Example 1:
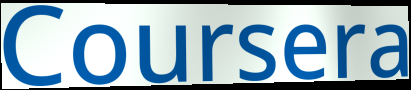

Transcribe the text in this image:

Coursera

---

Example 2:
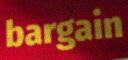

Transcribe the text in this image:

bargain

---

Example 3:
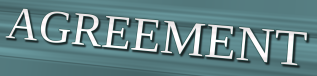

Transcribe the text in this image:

AGREEMENT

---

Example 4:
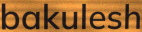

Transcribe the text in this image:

bakulesh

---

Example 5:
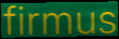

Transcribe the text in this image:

firmus